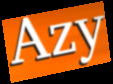
Azy